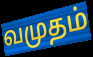
வமுதம்